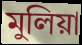
মুলিয়া